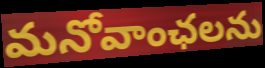
మనోవాంఛలను